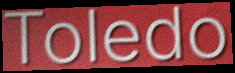
Toledo